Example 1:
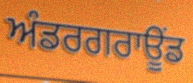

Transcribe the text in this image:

ਅੰਡਰਗਰਾਊੰਡ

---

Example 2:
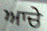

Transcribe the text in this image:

ਆਚੇ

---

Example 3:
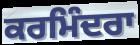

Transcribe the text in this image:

ਕਰਮਿੰਦਰਾ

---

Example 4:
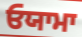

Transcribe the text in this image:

ਓਯਾਮਾ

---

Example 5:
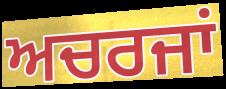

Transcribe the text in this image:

ਅਚਰਜਾਂ